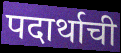
पदार्थाची